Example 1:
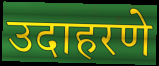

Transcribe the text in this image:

उदाहरणे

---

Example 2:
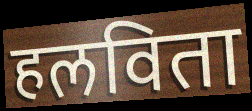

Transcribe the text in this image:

हलविता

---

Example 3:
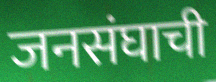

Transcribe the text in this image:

जनसंघाची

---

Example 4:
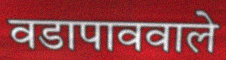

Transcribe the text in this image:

वडापाववाले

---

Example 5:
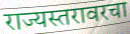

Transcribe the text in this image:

राज्यस्तरावरचा